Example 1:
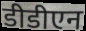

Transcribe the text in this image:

डीडीएन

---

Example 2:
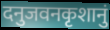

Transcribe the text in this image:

दनुजवनकृशानुं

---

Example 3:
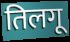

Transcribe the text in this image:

तिलगू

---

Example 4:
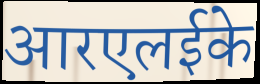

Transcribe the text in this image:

आरएलईके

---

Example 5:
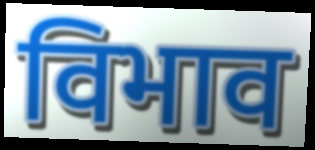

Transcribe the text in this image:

विभाव